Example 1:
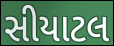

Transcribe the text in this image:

સીયાટલ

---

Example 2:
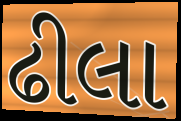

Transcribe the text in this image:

ઢીલા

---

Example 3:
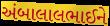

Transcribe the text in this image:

અંબાલાલભાઈને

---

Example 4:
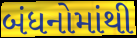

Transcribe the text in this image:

બંધનોમાંથી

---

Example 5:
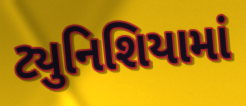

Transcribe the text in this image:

ટ્યુનિશિયામાં